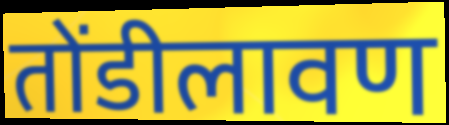
तोंडीलावण